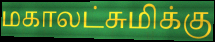
மகாலட்சுமிக்கு